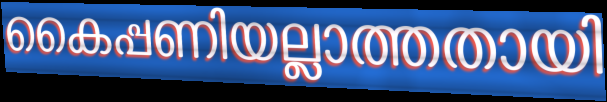
കൈപ്പണിയല്ലാത്തതായി